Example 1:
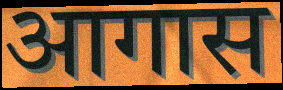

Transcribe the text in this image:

आगास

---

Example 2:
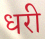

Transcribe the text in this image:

धरी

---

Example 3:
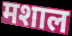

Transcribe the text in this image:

मशाल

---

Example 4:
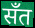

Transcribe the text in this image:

सँत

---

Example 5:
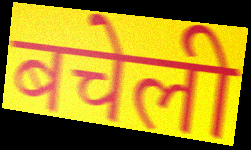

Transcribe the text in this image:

बचेली